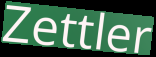
Zettler